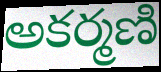
అకర్మణి